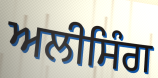
ਅਲੀਸਿੰਗ